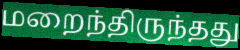
மறைந்திருந்தது